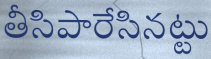
తీసిపారేసినట్టు